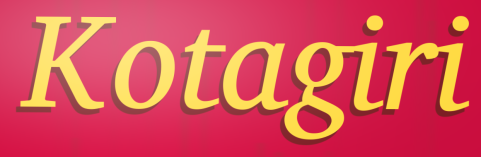
Kotagiri